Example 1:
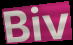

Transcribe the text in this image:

Biv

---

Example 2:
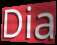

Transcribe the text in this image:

Dia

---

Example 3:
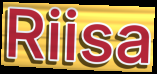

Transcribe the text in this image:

Riisa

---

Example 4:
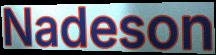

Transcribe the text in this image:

Nadeson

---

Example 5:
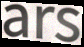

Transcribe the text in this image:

ars